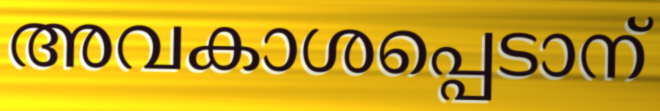
അവകാശപ്പെടാന്